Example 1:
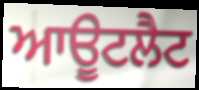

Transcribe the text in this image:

ਆਊਟਲੈਟ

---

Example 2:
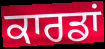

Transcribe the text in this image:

ਕਾਰਡਾਂ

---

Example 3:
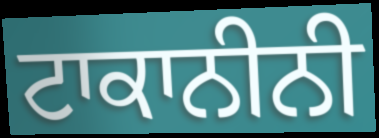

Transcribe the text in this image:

ਟਾਕਾਨੀਨੀ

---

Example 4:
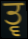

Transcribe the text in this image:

ਤ੍ਵ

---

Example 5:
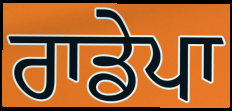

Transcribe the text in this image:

ਰਾਡੇਪਾ